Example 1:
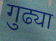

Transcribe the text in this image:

गुढ्या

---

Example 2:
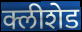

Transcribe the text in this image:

क्लीशेड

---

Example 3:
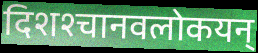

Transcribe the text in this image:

दिशश्चानवलोकयन्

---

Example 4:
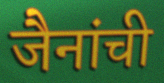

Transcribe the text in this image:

जैनांची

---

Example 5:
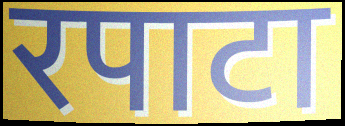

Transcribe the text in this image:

रपाटा